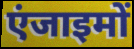
एंजाइमों